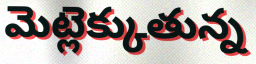
మెట్లెక్కుతున్న